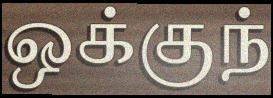
ஒக்குந்